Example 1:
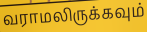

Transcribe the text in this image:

வராமலிருக்கவும்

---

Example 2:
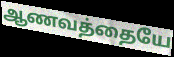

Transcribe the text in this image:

ஆணவத்தையே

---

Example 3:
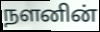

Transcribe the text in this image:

நளனின்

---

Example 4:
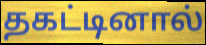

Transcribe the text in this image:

தகட்டினால்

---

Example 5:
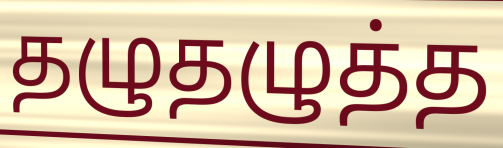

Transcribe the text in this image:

தழுதழுத்த